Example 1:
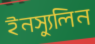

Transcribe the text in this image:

ইনস্যুলিন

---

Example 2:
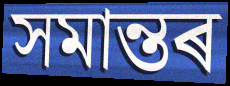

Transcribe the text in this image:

সমান্তৰ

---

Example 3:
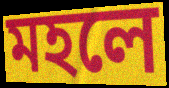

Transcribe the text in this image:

মহলে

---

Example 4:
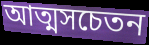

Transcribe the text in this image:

আত্মসচেতন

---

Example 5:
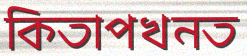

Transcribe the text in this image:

কিতাপখনত